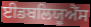
ਈਡਬਲਿਯੂਐੱਸ